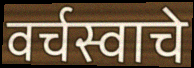
वर्चस्वाचे